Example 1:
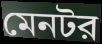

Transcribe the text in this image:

মেনটর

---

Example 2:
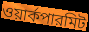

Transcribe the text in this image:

ওয়ার্কপারমিট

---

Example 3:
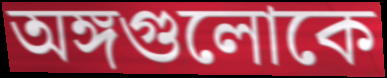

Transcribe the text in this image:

অঙ্গগুলোকে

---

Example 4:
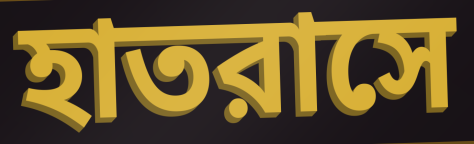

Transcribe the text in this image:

হাতরাসে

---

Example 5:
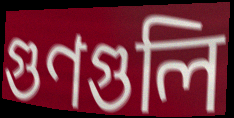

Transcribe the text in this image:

গুণগুলি